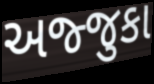
અજ્જુકા